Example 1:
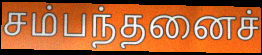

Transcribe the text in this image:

சம்பந்தனைச்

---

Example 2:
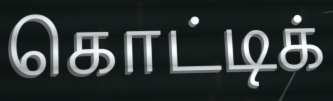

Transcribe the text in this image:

கொட்டிக்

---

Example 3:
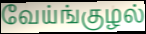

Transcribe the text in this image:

வேய்ங்குழல்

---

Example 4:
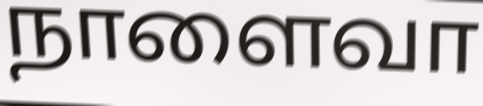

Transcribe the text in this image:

நாளைவா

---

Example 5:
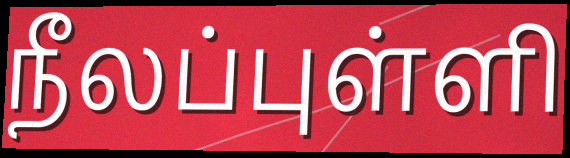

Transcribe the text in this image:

நீலப்புள்ளி